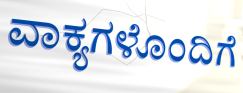
ವಾಕ್ಯಗಳೊಂದಿಗೆ